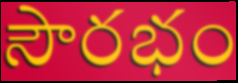
సౌరభం